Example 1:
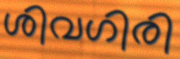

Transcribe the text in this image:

ശിവഗിരി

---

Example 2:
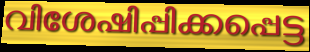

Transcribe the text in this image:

വിശേഷിപ്പിക്കപ്പെട്ട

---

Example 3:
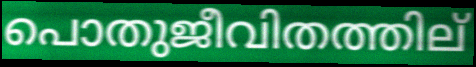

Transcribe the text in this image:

പൊതുജീവിതത്തില്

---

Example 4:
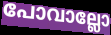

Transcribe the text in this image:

പോവാല്ലോ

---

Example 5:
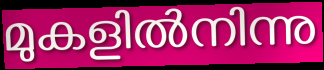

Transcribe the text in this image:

മുകളിൽനിന്നു